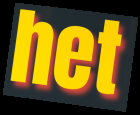
het